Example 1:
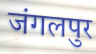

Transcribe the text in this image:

जंगलपुर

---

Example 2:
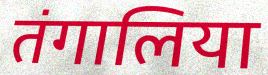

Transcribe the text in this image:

तंगालिया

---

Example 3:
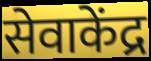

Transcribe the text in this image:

सेवाकेंद्र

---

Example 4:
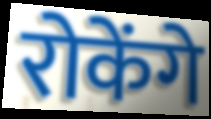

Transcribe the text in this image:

रोकेंगे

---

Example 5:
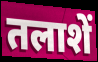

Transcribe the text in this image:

तलाशें